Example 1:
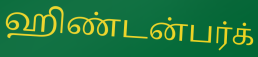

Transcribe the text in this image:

ஹிண்டன்பர்க்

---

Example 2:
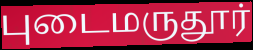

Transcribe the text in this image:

புடைமருதூர்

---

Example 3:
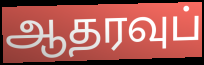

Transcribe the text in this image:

ஆதரவுப்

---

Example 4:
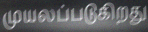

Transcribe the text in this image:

முயலப்படுகிறது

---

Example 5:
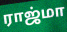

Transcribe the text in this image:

ராஜ்மா